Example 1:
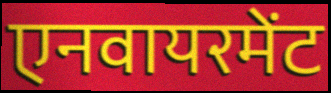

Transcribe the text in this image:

एनवायरमेंट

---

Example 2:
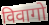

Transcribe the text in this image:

विवागो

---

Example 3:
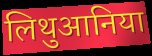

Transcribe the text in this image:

लिथुआनिया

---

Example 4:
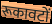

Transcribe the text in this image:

रूकावटों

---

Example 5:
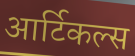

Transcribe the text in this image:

आर्टिकल्स